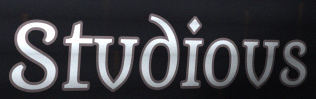
Studious